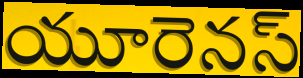
యూరెనస్